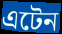
এটেন